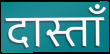
दास्ताँ